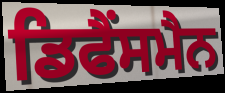
ਡਿਫੈਂਸਮੈਨ